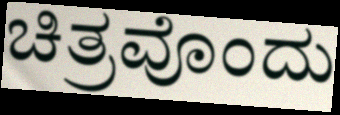
ಚಿತ್ರವೊಂದು